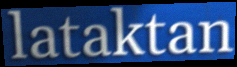
lataktan